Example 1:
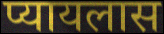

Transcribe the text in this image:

प्यायलास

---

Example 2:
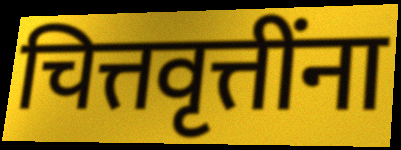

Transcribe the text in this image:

चित्तवृत्तींना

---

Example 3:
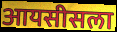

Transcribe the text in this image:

आयसीसला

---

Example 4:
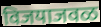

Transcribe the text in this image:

विजयाजवळ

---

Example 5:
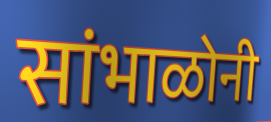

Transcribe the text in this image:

सांभाळोनी